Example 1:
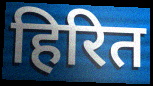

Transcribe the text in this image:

हिरित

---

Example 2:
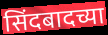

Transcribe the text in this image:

सिंदबादच्या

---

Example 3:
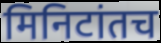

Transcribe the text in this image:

मिनिटांतच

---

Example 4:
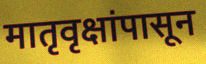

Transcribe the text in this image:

मातृवृक्षांपासून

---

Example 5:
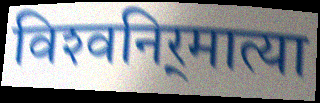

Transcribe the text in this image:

विश्वनिर्मात्या